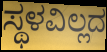
ಸ್ಥಳವಿಲ್ಲದ